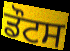
ਡੌਟਸ